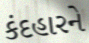
કંદહારને